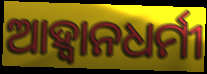
ଆହ୍ବାନଧର୍ମୀ